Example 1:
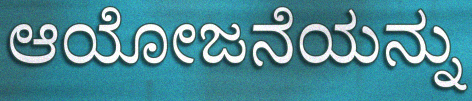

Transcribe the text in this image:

ಆಯೋಜನೆಯನ್ನು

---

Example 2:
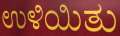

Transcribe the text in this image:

ಉಳಿಯಿತು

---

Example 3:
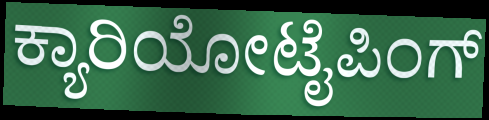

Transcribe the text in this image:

ಕ್ಯಾರಿಯೋಟೈಪಿಂಗ್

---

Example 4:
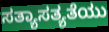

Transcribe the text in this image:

ಸತ್ಯಾಸತ್ಯತೆಯು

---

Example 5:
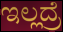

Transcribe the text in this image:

ಇಲ್ಲದ್ರೆ